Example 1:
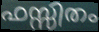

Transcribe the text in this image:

ഫസ്സിതം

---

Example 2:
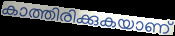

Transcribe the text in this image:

കാത്തിരിക്കുകയാണ്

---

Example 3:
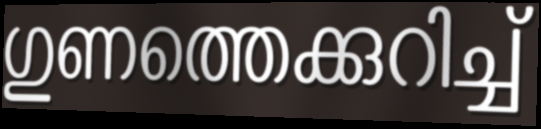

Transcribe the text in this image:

ഗുണത്തെക്കുറിച്ച്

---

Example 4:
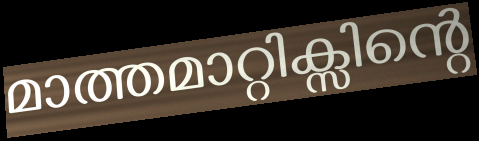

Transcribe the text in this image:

മാത്തമാറ്റിക്സിന്റെ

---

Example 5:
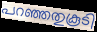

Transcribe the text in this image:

പറഞ്ഞതുകൂടി